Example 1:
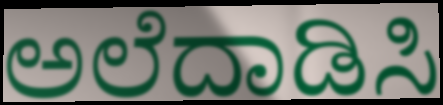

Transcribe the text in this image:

ಅಲೆದಾಡಿಸಿ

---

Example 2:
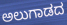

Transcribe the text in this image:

ಅಲುಗಾಡದ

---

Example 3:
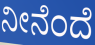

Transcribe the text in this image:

ನೀನೆಂದೆ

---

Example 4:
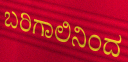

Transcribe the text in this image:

ಬರಿಗಾಲಿನಿಂದ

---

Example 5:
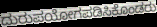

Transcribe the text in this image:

ದುರುಪಯೋಗಪಡಿಸಿಕೊಂಡರು